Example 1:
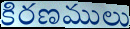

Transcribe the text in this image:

కిరణములు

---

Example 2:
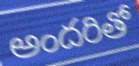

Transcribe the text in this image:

అందరితో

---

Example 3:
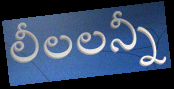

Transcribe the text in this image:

లీలలన్నీ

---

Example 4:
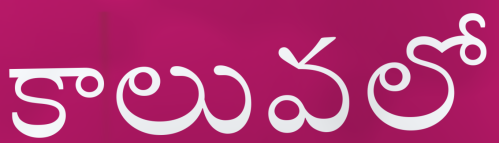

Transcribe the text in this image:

కాలువలో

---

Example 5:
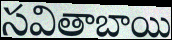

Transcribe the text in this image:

సవితాబాయి